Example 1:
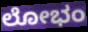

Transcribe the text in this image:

ಲೋಭಂ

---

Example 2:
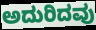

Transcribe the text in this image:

ಅದುರಿದವು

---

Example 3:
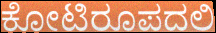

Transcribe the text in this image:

ಕೋಟಿರೂಪದಲಿ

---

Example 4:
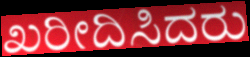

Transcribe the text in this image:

ಖರೀದಿಸಿದರು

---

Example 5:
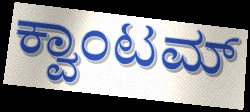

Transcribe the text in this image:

ಕ್ವಾಂಟಮ್